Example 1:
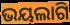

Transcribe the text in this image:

ଭୟଲାଗି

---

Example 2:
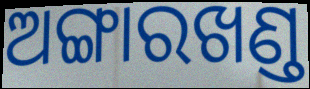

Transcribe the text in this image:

ଅଙ୍ଗାରଖଣ୍ଡ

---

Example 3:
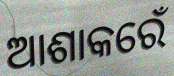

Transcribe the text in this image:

ଆଶାକରେଁ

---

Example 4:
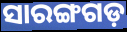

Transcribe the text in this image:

ସାରଙ୍ଗଗଡ଼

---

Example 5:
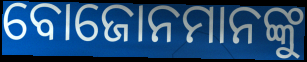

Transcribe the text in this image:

ବୋଜୋନମାନଙ୍କୁ